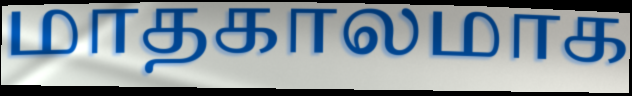
மாதகாலமாக